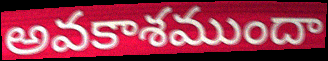
అవకాశముందా